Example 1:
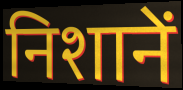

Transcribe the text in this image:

निशानें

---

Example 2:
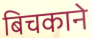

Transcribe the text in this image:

बिचकाने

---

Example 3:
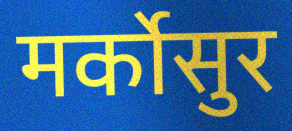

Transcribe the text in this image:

मर्कोसुर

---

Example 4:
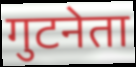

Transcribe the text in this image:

गुटनेता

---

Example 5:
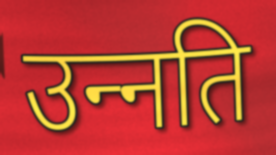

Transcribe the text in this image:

उन्‍नति